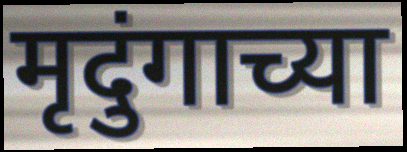
मृदुंगाच्या